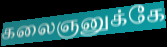
கலைஞனுக்கே